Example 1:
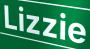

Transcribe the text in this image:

Lizzie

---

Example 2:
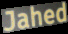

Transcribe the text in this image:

Jahed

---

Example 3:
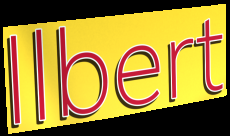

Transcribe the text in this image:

Ilbert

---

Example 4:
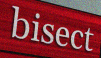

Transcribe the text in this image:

bisect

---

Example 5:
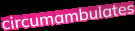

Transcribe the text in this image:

circumambulates